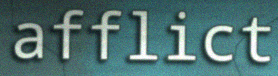
afflict